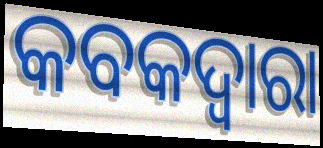
କବକଦ୍ୱାରା